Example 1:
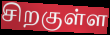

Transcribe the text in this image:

சிறகுள்ள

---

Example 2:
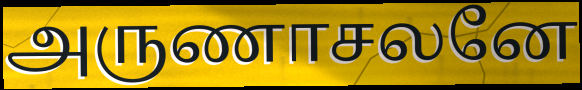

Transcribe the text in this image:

அருணாசலனே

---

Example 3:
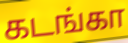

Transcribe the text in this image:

கடங்கா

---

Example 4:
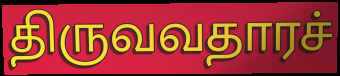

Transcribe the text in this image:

திருவவதாரச்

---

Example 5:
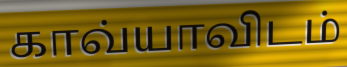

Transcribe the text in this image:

காவ்யாவிடம்